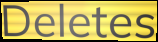
Deletes